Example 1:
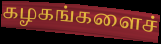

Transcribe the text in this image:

கழகங்களைச்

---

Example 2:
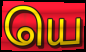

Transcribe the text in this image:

யெ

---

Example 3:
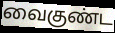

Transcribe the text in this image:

வைகுண்ட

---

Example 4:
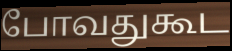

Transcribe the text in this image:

போவதுகூட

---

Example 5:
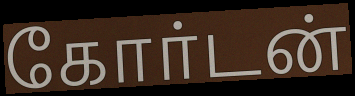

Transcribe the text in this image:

கோர்டன்